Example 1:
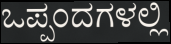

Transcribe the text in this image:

ಒಪ್ಪಂದಗಳಲ್ಲಿ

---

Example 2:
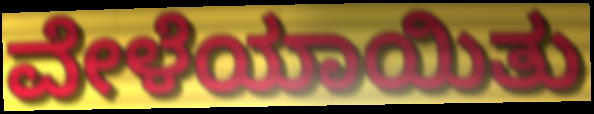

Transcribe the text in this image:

ವೇಳೆಯಾಯಿತು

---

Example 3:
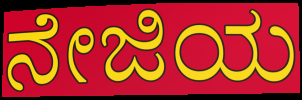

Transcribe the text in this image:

ನೇಜಿಯ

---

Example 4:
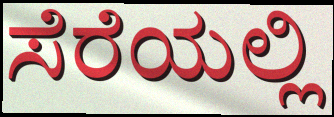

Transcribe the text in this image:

ಸೆರೆಯಲ್ಲಿ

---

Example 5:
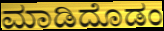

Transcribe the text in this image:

ಮಾಡಿದೊಡಂ